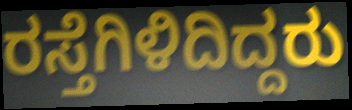
ರಸ್ತೆಗಿಳಿದಿದ್ದರು